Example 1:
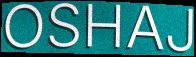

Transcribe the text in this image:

OSHAJ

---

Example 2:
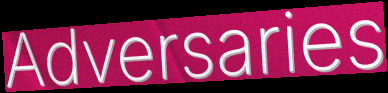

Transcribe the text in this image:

Adversaries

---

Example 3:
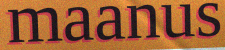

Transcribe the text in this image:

maanus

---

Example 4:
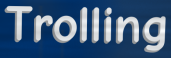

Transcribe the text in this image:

Trolling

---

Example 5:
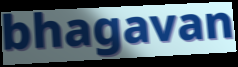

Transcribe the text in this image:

bhagavan